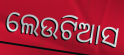
ଲେଉଟିଆସ